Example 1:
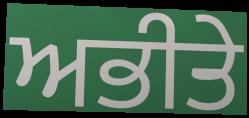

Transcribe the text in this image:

ਅਭੀਤੇ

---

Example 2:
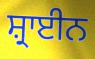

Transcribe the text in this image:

ਸ਼੍ਰਾਈਨ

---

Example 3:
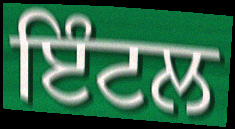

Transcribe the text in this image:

ਇੰਟਲ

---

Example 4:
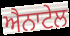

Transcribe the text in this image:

ਐਨਾਟੇਲ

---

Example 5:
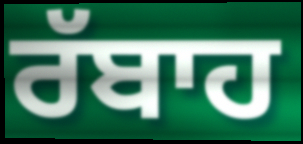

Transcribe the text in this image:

ਰੱਬਾਹ